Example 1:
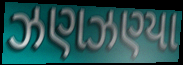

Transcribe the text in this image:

ઝણઝણ્યા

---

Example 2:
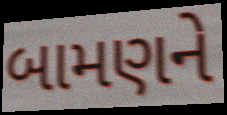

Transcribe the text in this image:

બામણને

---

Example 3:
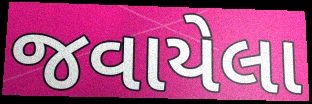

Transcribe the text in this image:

જવાયેલા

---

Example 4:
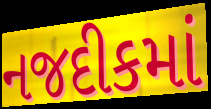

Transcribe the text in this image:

નજદીકમાં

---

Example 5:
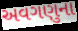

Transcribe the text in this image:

અવગણુના